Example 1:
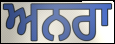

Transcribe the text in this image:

ਅਨਰਾ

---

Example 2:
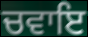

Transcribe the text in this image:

ਚਵਾਇ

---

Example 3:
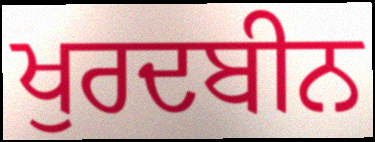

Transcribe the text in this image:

ਖੁਰਦਬੀਨ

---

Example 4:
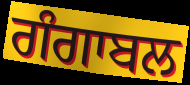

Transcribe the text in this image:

ਗੰਗਾਬਲ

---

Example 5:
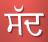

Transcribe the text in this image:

ਸੱਦ